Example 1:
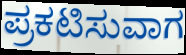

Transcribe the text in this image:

ಪ್ರಕಟಿಸುವಾಗ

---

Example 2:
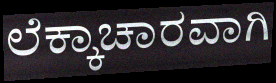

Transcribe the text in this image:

ಲೆಕ್ಕಾಚಾರವಾಗಿ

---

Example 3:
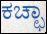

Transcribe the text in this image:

ಕಚ್ಛಾ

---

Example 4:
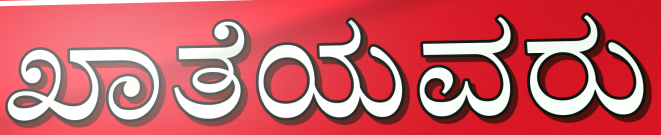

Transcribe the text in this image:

ಖಾತೆಯವರು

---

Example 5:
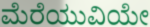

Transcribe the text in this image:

ಮೆರೆಯುವಿಯೇ